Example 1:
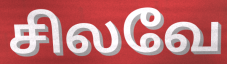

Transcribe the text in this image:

சிலவே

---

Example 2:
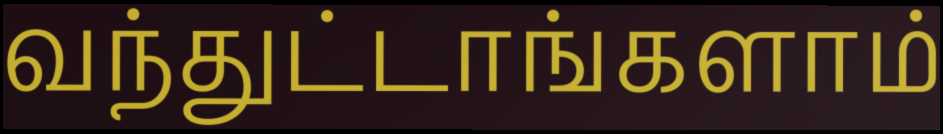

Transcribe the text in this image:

வந்துட்டாங்களாம்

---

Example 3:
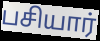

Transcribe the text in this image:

பசியார்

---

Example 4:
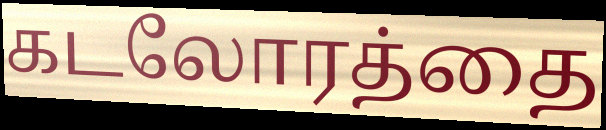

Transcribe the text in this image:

கடலோரத்தை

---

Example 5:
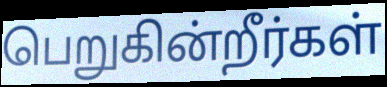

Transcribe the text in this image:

பெறுகின்றீர்கள்